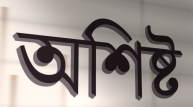
অশিষ্ট